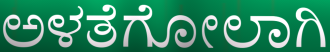
ಅಳತೆಗೋಲಾಗಿ